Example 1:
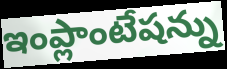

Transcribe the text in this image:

ఇంప్లాంటేషన్ను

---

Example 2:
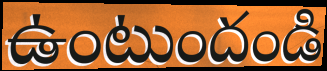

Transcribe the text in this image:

ఉంటుందండి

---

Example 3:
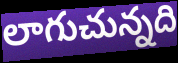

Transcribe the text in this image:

లాగుచున్నది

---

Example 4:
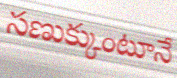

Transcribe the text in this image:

సణుక్కుంటూనే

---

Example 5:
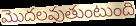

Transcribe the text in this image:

మొదలవుతుంటుంది